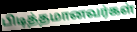
பிடித்தமானவர்கள்